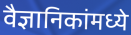
वैज्ञानिकांमध्ये